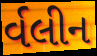
ર્વલીન